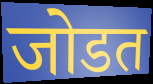
जोडत